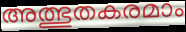
അത്ഭുതകരമാം